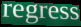
regress